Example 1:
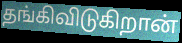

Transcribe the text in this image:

தங்கிவிடுகிறான்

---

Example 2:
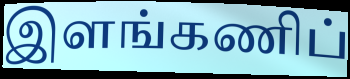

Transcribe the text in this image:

இளங்கணிப்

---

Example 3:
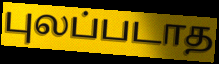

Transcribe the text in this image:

புலப்படாத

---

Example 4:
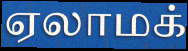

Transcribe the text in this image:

ஏலாமக்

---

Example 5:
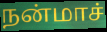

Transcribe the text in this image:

நன்மாச்